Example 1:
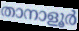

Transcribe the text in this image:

താനാളൂർ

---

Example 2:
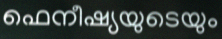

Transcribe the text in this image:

ഫെനീഷ്യയുടെയും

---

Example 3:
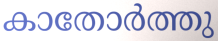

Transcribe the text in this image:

കാതോർത്തു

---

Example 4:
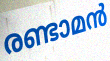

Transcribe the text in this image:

രണ്ടാമൻ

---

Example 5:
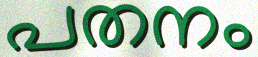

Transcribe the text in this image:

പതനം